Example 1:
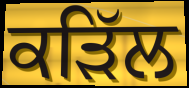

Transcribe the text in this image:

ਕੜਿੱਲ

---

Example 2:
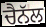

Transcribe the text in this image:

ਚੈਨੱਲ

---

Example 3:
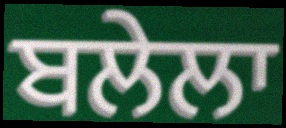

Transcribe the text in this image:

ਬਲੇਲਾ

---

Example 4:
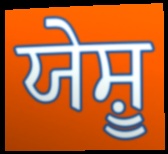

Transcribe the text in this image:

ਯੇਸ਼ੂ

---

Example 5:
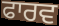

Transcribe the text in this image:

ਫਾਰਵ